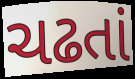
ચઢતાં